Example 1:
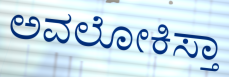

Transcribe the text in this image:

ಅವಲೋಕಿಸ್ತಾ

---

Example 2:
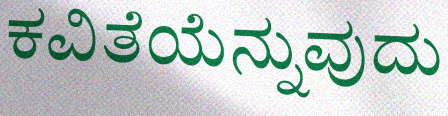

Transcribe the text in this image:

ಕವಿತೆಯೆನ್ನುವುದು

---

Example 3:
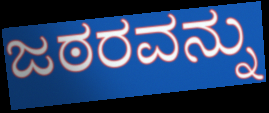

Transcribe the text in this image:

ಜಠರವನ್ನು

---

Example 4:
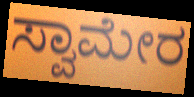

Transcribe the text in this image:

ಸ್ವಾಮೇರ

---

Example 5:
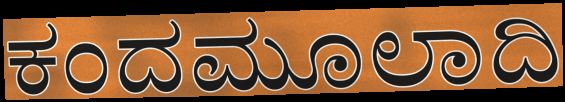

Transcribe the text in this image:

ಕಂದಮೂಲಾದಿ